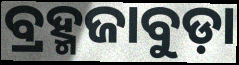
ବ୍ରହ୍ମଜାବୁଡ଼ା